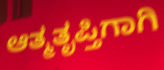
ಆತ್ಮತೃಪ್ತಿಗಾಗಿ